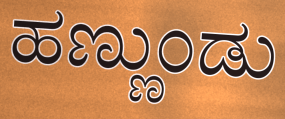
ಹಣ್ಣುಂಡು